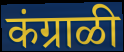
कंग्राळी